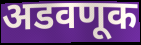
अडवणूक